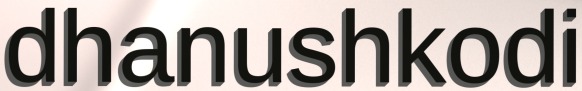
dhanushkodi